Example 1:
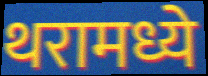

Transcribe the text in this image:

थरामध्ये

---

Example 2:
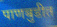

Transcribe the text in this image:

पाणबुडीत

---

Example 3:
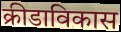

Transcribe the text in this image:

क्रीडाविकास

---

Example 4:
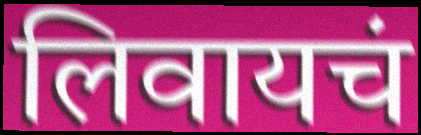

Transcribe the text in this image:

लिवायचं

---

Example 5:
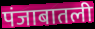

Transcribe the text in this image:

पंजाबातली